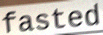
fasted